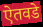
ऐतवडे